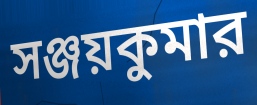
সঞ্জয়কুমার